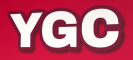
YGC